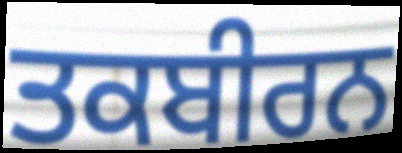
ਤਕਬੀਰਨ